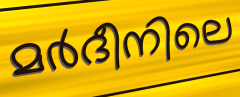
മർദീനിലെ